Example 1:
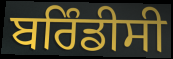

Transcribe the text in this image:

ਬਰਿੰਡੀਸੀ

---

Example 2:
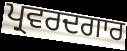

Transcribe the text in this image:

ਪ੍ਰਵਰਦਗਾਰ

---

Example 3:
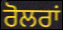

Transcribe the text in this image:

ਰੋਲਰਾਂ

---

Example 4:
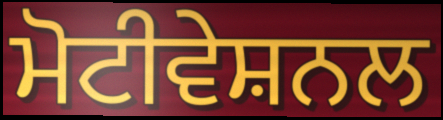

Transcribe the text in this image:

ਮੋਟੀਵੇਸ਼ਨਲ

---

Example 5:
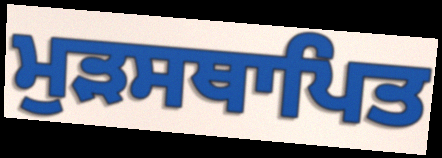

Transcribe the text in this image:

ਮੁੜਸਥਾਪਿਤ